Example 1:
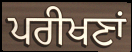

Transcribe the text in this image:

ਪਰੀਖਣਾਂ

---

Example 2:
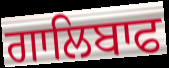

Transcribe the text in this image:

ਗਾਲਿਬਾਫ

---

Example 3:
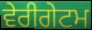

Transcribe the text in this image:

ਵੇਰੀਗੇਟਮ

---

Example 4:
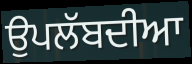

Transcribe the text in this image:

ਉਪਲੱਬਦੀਆ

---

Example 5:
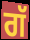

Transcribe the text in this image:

ਗੱ